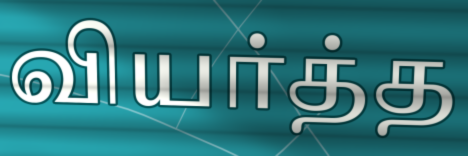
வியர்த்த